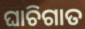
ଘାଚିଗାତ